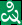
ಷಿ